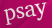
psay